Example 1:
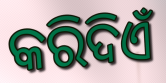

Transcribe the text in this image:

କରିଦିଏଁ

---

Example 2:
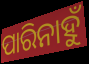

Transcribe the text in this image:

ପାରିନାହୁଁ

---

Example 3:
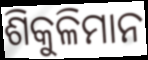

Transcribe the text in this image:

ଶିକୁଳିମାନ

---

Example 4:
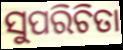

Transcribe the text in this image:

ସୁପରିଚିତା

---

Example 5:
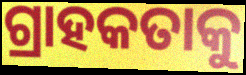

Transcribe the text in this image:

ଗ୍ରାହକତାକୁ